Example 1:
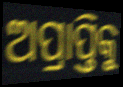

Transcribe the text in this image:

ଅପ୍ରାପ୍ତିକୁ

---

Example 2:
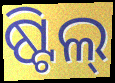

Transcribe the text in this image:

ଷ୍ଟିଲ୍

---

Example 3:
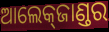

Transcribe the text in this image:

ଆଲେକ୍‌ଜାଣ୍ଡର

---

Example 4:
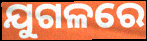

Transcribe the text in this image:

ଯୁଗଳରେ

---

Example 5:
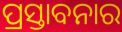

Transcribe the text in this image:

ପ୍ରସ୍ତାବନାର